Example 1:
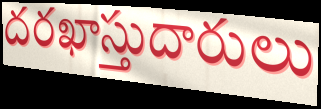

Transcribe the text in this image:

దరఖాస్తుదారులు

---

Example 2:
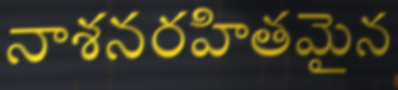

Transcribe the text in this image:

నాశనరహితమైన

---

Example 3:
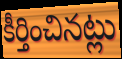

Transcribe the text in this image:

కీర్తించినట్లు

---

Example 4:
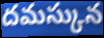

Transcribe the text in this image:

దమస్కున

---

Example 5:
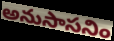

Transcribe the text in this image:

అనుసాసనిం